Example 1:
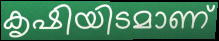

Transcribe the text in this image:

കൃഷിയിടമാണ്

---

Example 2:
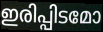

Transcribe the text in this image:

ഇരിപ്പിടമോ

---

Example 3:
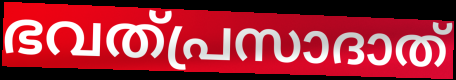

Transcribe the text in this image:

ഭവത്പ്രസാദാത്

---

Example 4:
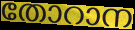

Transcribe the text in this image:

തോറാന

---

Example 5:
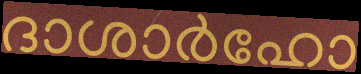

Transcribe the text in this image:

ദാശാർഹോ